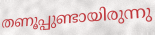
തണൂപ്പുണ്ടായിരുന്നു